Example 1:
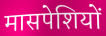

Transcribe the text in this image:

मासपेशियों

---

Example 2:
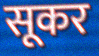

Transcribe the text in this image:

सूकर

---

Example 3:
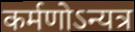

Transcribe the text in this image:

कर्मणोऽन्यत्र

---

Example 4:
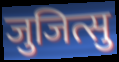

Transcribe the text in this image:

जुजित्सु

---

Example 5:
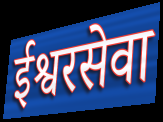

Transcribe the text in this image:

ईश्वरसेवा